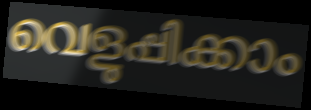
വെളുപ്പിക്കാം